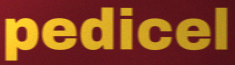
pedicel